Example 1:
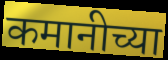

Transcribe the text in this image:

कमानीच्या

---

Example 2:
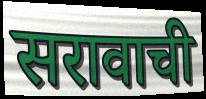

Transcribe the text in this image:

सरावाची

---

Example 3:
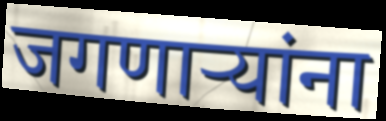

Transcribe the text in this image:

जगणाऱ्यांना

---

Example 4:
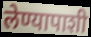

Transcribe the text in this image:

लेण्यापाशी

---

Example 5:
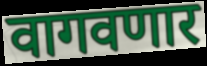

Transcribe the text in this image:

वागवणार